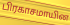
பிரகாசமாயின